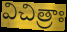
విచిత్రాః